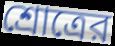
শ্রোত্রের